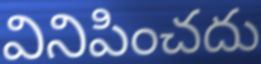
వినిపించదు